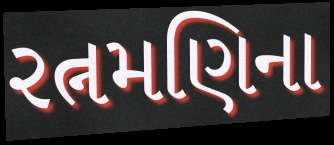
રત્નમણિના